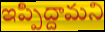
ఇప్పిద్దామని